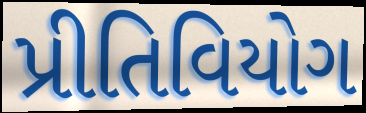
પ્રીતિવિયોગ